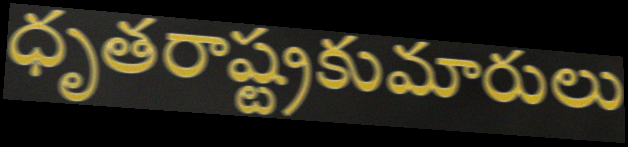
ధృతరాష్ట్రకుమారులు